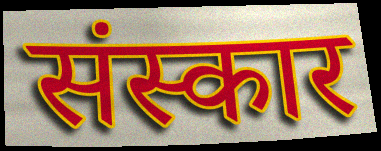
संस्कार